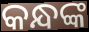
କନ୍ଧଙ୍କ